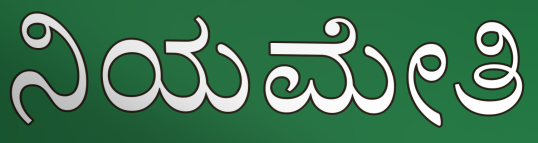
ನಿಯಮೇತಿ